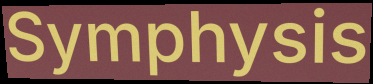
Symphysis